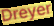
Dreyer